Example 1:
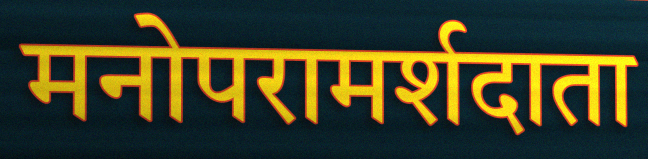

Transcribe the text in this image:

मनोपरामर्शदाता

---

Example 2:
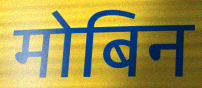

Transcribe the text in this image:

मोबिन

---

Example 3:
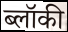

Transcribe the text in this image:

ब्लॉकी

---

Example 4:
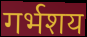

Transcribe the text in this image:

गर्भशय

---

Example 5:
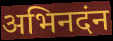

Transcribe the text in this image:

अभिनदंन